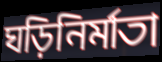
ঘড়িনির্মাতা